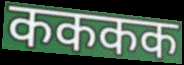
कककक